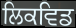
ਲਿਕਵਿਡ